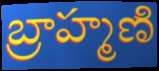
బ్రాహ్మణి